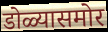
डोळ्यासमोर